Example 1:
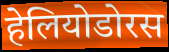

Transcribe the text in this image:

हेलियोडोरस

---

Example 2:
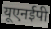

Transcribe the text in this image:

यूएनईपी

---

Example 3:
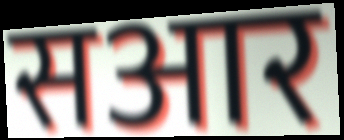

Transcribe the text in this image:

सआर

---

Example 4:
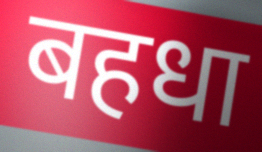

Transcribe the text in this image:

बहधा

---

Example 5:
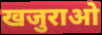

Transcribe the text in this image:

खजुराओ